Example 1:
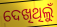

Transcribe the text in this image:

ଦେଖିଥିଲୁଁ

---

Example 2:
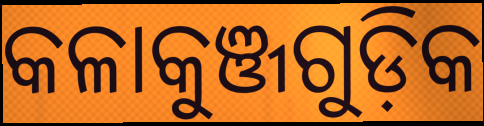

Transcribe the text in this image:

କଳାକୁଞ୍ଜଗୁଡ଼ିକ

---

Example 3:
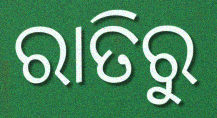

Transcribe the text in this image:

ରାତିରୁ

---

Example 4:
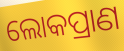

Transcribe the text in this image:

ଲୋକପ୍ରାଣ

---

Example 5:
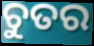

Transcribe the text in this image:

ଚୁତର